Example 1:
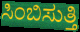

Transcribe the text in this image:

ಸಿಂಬಿಸುತ್ತಿ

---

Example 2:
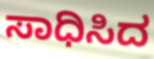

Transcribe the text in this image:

ಸಾಧಿಸಿದ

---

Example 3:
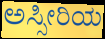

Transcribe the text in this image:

ಅಸ್ಸೀರಿಯ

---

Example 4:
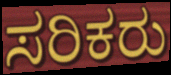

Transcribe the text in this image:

ಸರಿಕರು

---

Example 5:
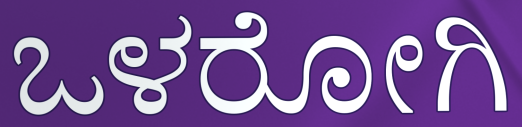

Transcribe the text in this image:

ಒಳರೋಗಿ